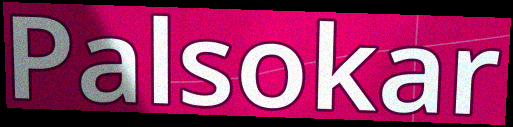
Palsokar